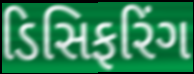
ડિસિફરિંગ